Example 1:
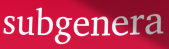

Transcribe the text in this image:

subgenera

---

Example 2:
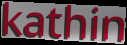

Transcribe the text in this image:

kathin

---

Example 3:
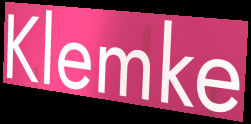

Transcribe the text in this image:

Klemke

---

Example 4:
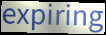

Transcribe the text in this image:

expiring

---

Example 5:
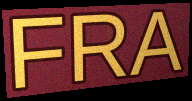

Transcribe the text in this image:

FRA